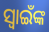
ସ୍ଵାଇଁଙ୍କ